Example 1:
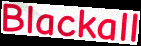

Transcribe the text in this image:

Blackall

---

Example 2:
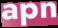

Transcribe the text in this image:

apn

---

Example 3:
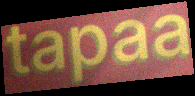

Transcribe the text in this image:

tapaa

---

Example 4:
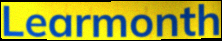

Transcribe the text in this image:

Learmonth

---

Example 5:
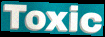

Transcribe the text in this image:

Toxic